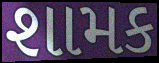
શામક